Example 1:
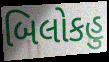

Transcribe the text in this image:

બિલોકહુ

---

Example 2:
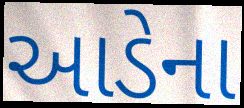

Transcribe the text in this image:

આડેના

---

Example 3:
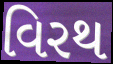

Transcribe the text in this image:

વિરથ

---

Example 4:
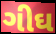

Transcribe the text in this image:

ગીઘ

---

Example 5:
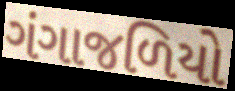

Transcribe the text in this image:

ગંગાજળિયો